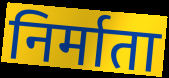
निर्माता